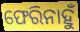
ଫେରିନାହୁଁ